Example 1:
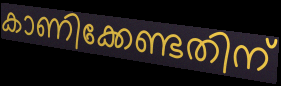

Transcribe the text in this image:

കാണിക്കേണ്ടതിന്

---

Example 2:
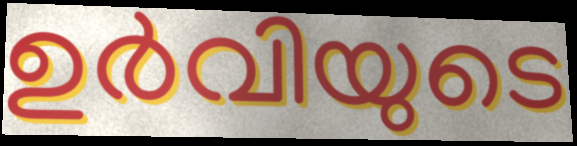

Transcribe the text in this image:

ഉർവിയുടെ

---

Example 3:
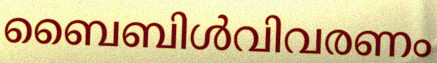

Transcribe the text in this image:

ബൈബിൾവിവരണം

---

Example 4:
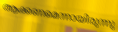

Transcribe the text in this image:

ആക്കണമെന്നായിരുന്നു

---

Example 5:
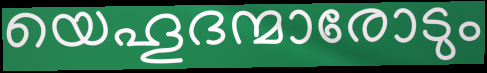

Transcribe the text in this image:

യെഹൂദന്മാരോടും